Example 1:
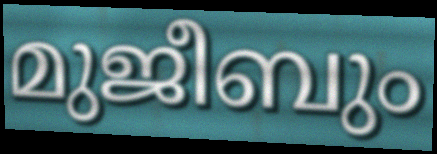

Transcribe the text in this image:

മുജീബും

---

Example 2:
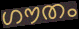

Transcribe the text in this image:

ഗൗതം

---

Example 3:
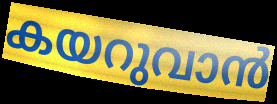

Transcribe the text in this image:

കയറുവാൻ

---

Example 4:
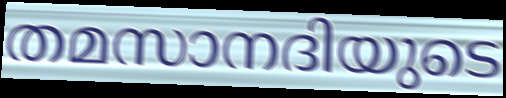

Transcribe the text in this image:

തമസാനദിയുടെ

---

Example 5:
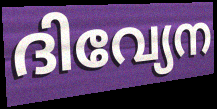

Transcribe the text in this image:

ദിവ്യേന